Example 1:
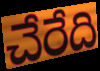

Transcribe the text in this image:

చేరేది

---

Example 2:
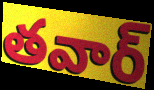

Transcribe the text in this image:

తవార్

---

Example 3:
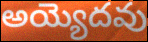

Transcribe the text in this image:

అయ్యెదవు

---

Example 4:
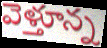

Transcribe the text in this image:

వెళ్తూన్న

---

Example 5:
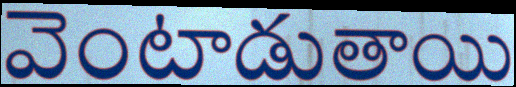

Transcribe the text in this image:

వెంటాడుతాయి